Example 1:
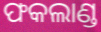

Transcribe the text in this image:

ଫକଲାଣ୍ଡ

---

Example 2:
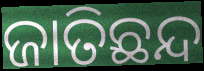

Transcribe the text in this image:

ଜାତିଛନ୍ଦ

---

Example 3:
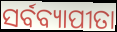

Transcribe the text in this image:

ସର୍ବବ୍ୟାପୀତା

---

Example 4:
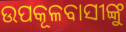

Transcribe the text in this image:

ଉପକୂଳବାସୀଙ୍କୁ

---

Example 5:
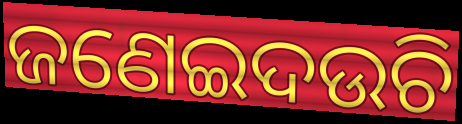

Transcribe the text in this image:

ଜଣେଇଦଉଚି